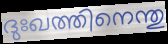
ദുഃഖത്തിനെന്തു